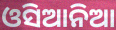
ଓସିଆନିଆ